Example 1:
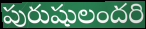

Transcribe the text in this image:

పురుషులందరి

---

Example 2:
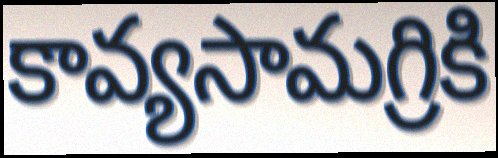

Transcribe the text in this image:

కావ్యసామగ్రికి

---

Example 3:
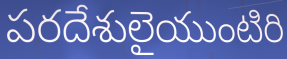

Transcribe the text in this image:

పరదేశులైయుంటిరి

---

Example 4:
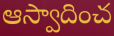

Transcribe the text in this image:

ఆస్వాదించ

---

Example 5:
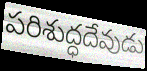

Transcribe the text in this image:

పరిశుద్ధదేవుడు